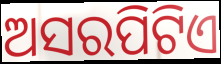
ଅସରପିଟିଏ